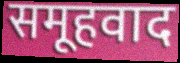
समूहवाद